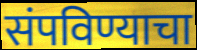
संपविण्याचा